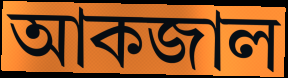
আকজাল